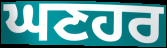
ਘਣਹਰ